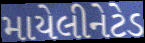
માયેલીનેટેડ